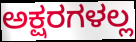
ಅಕ್ಷರಗಳಲ್ಲ